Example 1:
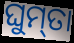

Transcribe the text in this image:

ଘୁମ୍‌ତା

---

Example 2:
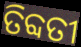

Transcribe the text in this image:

ତିବ୍ଦତୀ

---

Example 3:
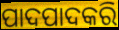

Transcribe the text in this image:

ପାଦପାଦକରି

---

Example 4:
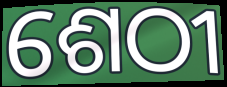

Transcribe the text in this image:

ଶେଠୀ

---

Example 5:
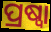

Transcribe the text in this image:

ପ୍ରଷ୍ୱା